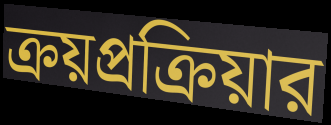
ক্রয়প্রক্রিয়ার